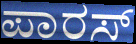
ಪಾರಸ್